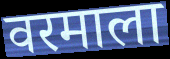
वरमाला